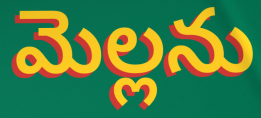
మెల్లను